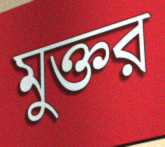
মুক্তর